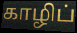
காழிப்